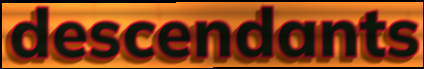
descendants